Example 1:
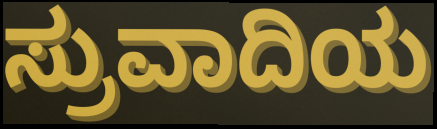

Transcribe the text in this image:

ಸ್ರುವಾದಿಯ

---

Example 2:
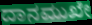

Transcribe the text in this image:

ದಾನಮುಖೇ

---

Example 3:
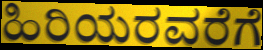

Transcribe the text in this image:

ಹಿರಿಯರವರೆಗೆ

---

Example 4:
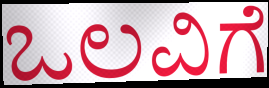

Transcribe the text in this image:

ಒಲವಿಗೆ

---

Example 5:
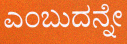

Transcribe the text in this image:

ಎಂಬುದನ್ನೇ